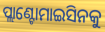
ପ୍ଲାଣ୍ଟୋମାଇସିନକୁ